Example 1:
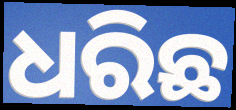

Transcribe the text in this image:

ଧରିଛ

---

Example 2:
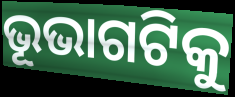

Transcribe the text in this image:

ଭୂଭାଗଟିକୁ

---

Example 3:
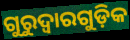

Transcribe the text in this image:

ଗୁରୁଦ୍ବାରଗୁଡ଼ିକ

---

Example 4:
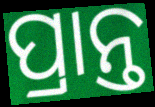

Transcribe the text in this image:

ପ୍ରାନ୍ତ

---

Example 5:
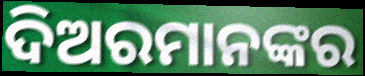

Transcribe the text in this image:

ଦିଅରମାନଙ୍କର